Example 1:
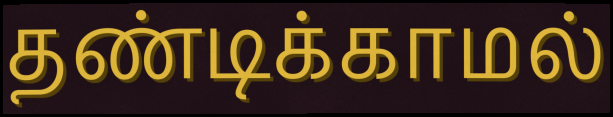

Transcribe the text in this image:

தண்டிக்காமல்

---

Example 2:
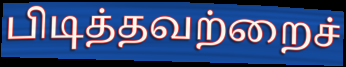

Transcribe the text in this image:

பிடித்தவற்றைச்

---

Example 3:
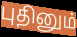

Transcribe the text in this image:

புதினும்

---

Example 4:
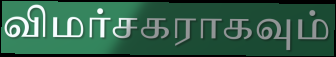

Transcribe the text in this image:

விமர்சகராகவும்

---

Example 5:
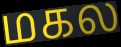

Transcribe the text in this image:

மகல